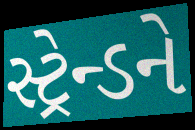
સ્ટ્રેન્ડને